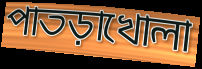
পাতড়াখোলা